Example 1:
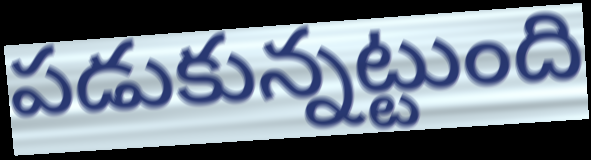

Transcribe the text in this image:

పడుకున్నట్టుంది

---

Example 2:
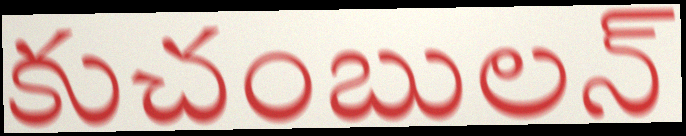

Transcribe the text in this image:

కుచంబులన్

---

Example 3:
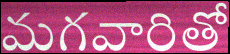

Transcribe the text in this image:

మగవారితో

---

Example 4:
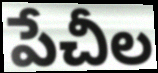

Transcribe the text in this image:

పేచీల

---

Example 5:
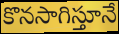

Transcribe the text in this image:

కొనసాగిస్తూనే